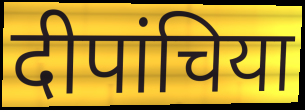
दीपांचिया